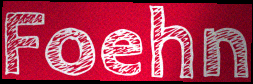
Foehn